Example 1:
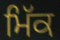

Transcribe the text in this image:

ਮਿੱਕ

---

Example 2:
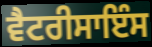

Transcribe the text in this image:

ਵੈਟਰੀਸਾਇੰਸ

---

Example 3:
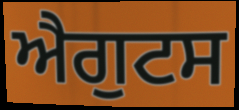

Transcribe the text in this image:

ਐਗੁਟਸ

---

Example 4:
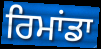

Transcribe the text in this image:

ਰਿਮਾਂਡਾ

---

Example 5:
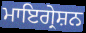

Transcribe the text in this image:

ਮਾਇਗ੍ਰੇਸ਼ਨ